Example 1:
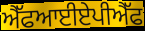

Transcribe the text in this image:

ਐੱਫਆਈਏਪੀਐੱਫ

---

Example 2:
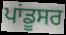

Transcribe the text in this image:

ਪਾਂਡੂਸਰ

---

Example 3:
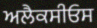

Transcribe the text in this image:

ਅਲੈਕਸੀਓਸ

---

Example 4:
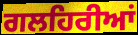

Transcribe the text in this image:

ਗਲਹਿਰੀਆਂ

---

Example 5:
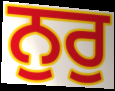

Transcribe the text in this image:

ਨੁਰੁ